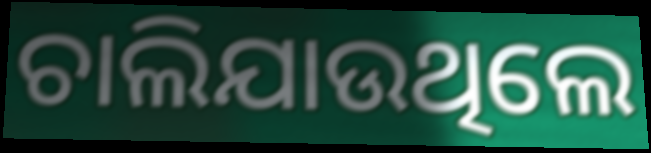
ଚାଲିଯାଉଥିଲେ